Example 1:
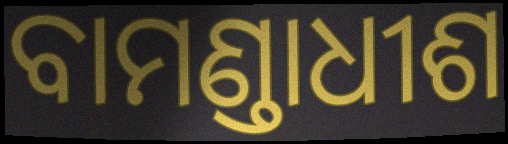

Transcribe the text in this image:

ବାମଣ୍ଡାଧୀଶ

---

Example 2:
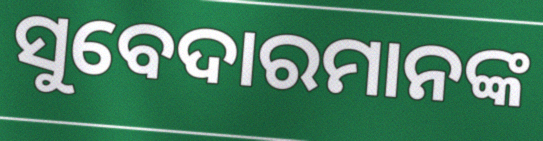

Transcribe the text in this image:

ସୁବେଦାରମାନଙ୍କ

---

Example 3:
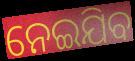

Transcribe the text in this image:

ନେଇଯିବ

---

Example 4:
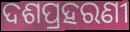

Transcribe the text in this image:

ଦଶପ୍ରହରଣୀ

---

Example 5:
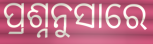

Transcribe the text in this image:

ପ୍ରଶ୍ନନୁସାରେ